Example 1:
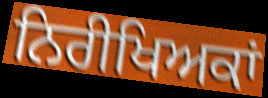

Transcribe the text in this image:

ਨਿਰੀਖਿਅਕਾਂ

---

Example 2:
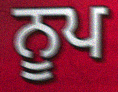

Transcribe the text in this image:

ਨੂਪ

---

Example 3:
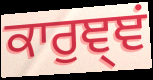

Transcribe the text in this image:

ਕਾਰੁਞ੍ਞਂ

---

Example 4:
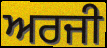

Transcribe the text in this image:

ਅਰਜੀ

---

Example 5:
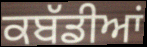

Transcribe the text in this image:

ਕਬੱਡੀਆਂ